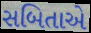
સબિતાએ